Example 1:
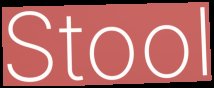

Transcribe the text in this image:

Stool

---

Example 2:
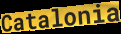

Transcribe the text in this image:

Catalonia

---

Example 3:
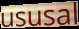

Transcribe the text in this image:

ususal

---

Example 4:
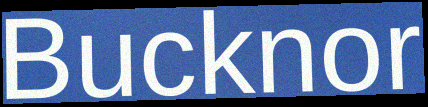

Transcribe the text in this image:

Bucknor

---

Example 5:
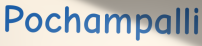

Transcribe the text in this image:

Pochampalli